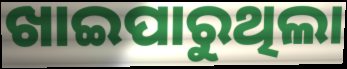
ଖାଇପାରୁଥିଲା